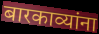
बारकाव्यांना